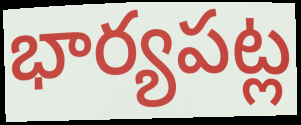
భార్యపట్ల